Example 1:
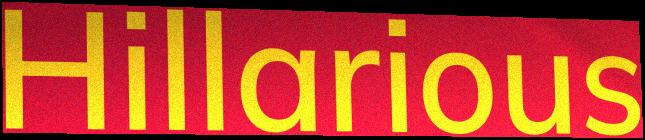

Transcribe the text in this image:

Hillarious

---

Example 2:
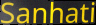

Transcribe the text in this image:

Sanhati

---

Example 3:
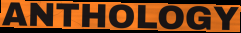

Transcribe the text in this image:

ANTHOLOGY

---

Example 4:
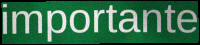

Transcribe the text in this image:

importante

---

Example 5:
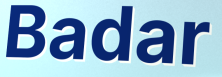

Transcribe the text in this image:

Badar